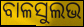
ବାଳସୁଲଭ